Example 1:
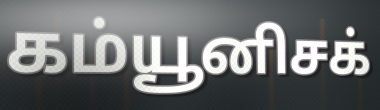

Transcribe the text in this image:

கம்யூனிசக்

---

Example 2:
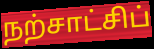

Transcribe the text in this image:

நற்சாட்சிப்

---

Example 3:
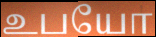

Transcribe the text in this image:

உபயோ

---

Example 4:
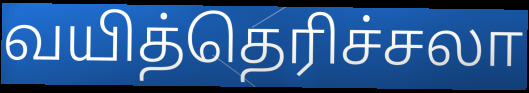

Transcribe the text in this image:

வயித்தெரிச்சலா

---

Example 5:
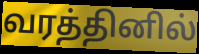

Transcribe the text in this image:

வரத்தினில்